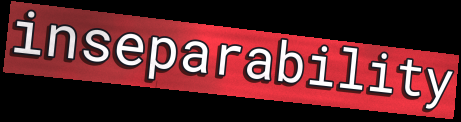
inseparability